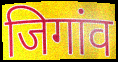
जिगांव